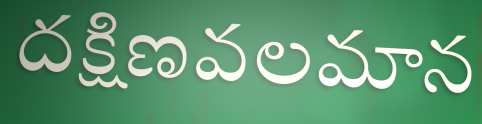
దక్షిణవలమాన